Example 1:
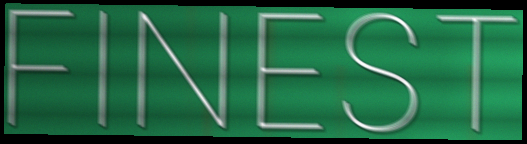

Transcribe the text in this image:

FINEST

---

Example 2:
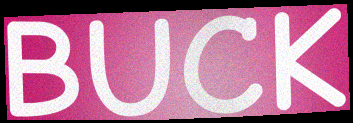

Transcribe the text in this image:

BUCK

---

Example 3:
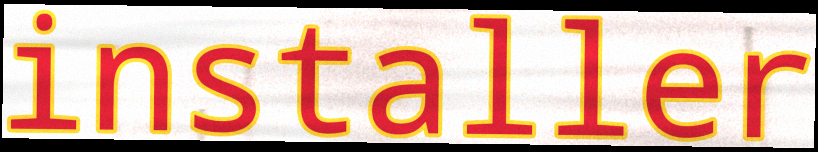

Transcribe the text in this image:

installer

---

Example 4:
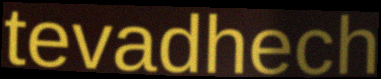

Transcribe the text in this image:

tevadhech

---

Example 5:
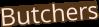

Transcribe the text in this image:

Butchers